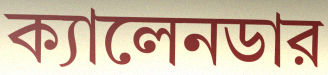
ক্যালেনডার